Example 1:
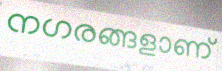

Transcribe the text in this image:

നഗരങ്ങളാണ്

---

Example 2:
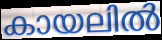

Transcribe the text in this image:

കായലിൽ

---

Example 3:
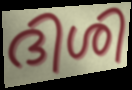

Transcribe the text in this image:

ദിശി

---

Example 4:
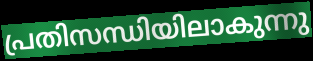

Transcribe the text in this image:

പ്രതിസന്ധിയിലാകുന്നു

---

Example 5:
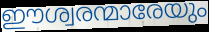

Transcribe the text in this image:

ഈശ്വരന്മാരേയും